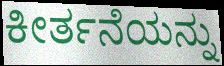
ಕೀರ್ತನೆಯನ್ನು